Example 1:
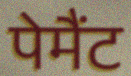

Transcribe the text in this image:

पेमैंट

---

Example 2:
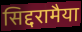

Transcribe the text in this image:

सिद्दरामैया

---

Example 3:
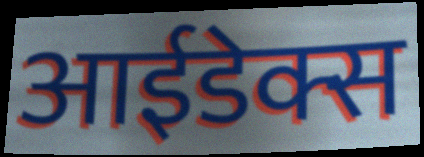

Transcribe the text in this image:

आईडेक्स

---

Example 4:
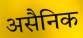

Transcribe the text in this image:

असैनिक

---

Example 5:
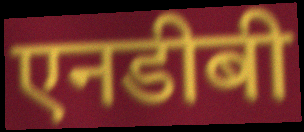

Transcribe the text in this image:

एनडीबी